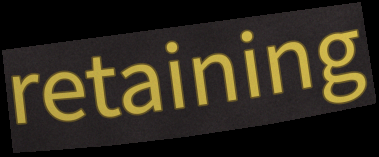
retaining